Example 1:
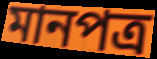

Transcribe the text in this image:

মানপত্র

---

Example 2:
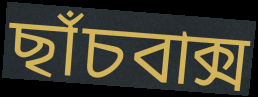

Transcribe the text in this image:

ছাঁচবাক্স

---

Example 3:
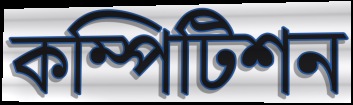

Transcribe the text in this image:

কম্পিটিশন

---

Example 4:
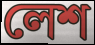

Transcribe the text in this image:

লেশ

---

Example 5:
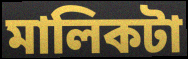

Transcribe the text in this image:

মালিকটা